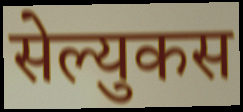
सेल्युकस